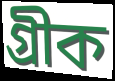
গ্রীক